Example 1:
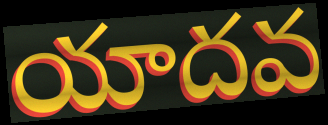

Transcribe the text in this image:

యాదవ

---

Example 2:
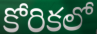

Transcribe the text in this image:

కోరికలో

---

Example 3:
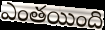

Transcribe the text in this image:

ఎంతయింది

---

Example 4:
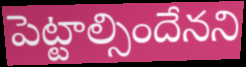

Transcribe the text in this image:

పెట్టాల్సిందేనని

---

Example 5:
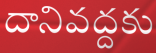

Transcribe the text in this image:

దానివద్దకు